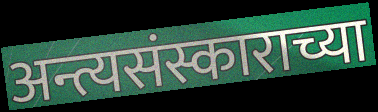
अन्त्यसंस्काराच्या